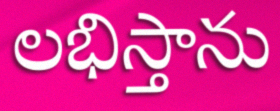
లభిస్తాను